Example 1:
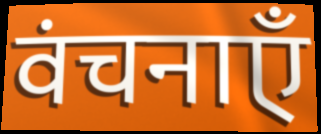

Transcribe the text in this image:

वंचनाएँ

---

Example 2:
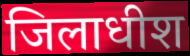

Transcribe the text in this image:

जिलाधीश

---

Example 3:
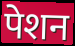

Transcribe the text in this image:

पेशन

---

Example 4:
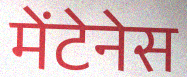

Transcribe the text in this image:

मेंटेनेस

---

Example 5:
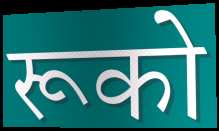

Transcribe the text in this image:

रूको